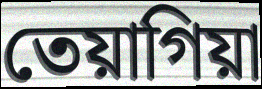
তেয়াগিয়া